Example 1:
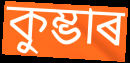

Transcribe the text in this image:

কুম্ভাৰ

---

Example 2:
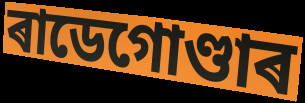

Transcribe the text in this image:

ৰাডেগোণ্ডাৰ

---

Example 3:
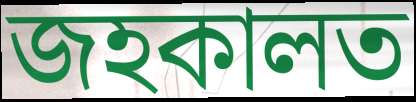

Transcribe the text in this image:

জহকালত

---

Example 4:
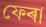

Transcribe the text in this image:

ফেৰা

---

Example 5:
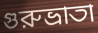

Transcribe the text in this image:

গুৰুভ্ৰাতা